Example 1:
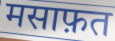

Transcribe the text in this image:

मसाफ़त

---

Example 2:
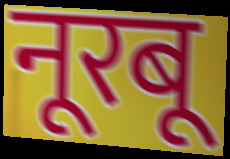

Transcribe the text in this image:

नूरबू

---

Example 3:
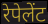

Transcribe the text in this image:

रेपेलेंट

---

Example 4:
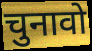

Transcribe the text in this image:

चुनावो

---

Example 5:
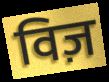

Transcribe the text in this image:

विज़